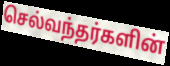
செல்வந்தர்களின்